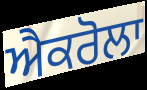
ਐਕਰੋਲਾ